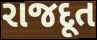
રાજદૂત